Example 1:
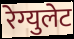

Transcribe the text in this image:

रेग्‍युलेट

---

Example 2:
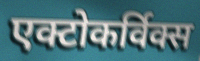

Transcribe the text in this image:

एक्टोकर्विक्स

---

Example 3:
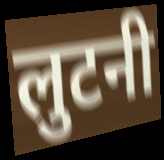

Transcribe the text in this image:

लुटनी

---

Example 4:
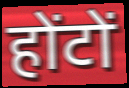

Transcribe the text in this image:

होंटों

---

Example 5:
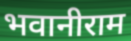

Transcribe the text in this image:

भवानीराम